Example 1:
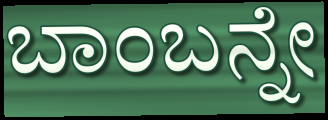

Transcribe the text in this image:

ಬಾಂಬನ್ನೇ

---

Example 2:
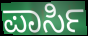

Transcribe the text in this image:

ಪಾರ್ಸಿ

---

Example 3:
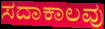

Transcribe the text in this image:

ಸದಾಕಾಲವು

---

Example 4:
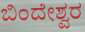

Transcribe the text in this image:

ಬಿಂದೇಶ್ವರ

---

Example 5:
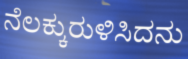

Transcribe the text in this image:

ನೆಲಕ್ಕುರುಳಿಸಿದನು